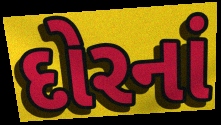
દોરનાં